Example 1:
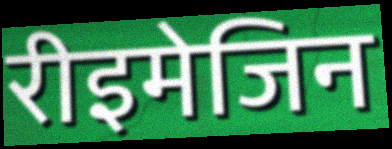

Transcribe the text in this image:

रीइमेजिन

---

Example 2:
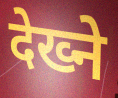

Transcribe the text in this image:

देख्ने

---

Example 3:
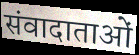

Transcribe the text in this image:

संवादाताओं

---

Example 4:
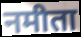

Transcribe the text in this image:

नमीता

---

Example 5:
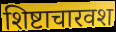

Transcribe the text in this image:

शिष्टाचारवश